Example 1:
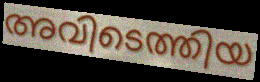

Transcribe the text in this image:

അവിടെത്തിയ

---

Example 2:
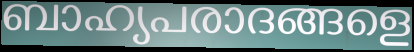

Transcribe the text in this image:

ബാഹ്യപരാദങ്ങളെ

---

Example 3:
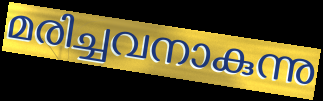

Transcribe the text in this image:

മരിച്ചവനാകുന്നു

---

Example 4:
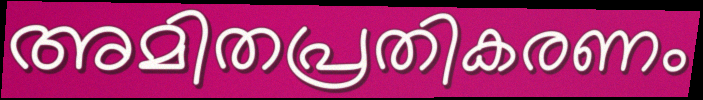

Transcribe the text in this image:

അമിതപ്രതികരണം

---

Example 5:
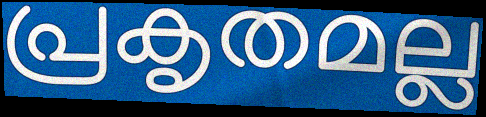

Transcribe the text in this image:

പ്രകൃതമല്ല